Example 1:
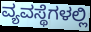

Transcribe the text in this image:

ವ್ಯವಸ್ಥೆಗಳಲ್ಲಿ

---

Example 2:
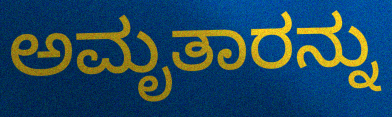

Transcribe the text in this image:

ಅಮೃತಾರನ್ನು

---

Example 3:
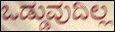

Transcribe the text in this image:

ಒಡ್ಡುವುದಿಲ್ಲ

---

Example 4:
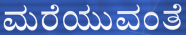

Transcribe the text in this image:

ಮರೆಯುವಂತೆ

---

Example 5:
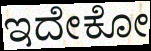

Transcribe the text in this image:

ಇದೇಕೋ